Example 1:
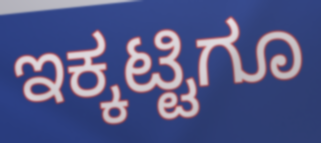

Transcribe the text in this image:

ಇಕ್ಕಟ್ಟಿಗೂ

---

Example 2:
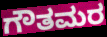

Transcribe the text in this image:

ಗೌತಮರ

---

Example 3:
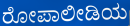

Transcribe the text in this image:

ರೋಪಾಲೀಡಿಯ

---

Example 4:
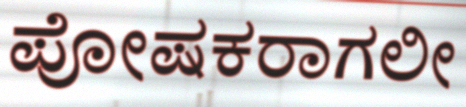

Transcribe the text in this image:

ಪೋಷಕರಾಗಲೀ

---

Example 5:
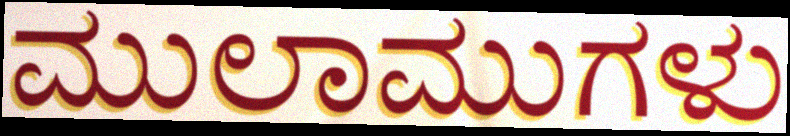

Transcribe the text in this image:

ಮುಲಾಮುಗಳು